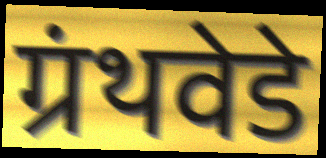
ग्रंथवेडे